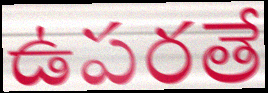
ఉపరతే